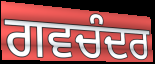
ਗਵਚੰਦਰ